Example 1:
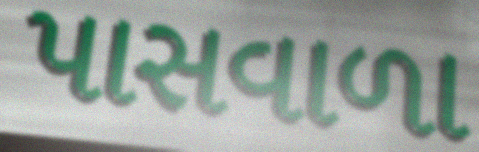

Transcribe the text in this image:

પાસવાળા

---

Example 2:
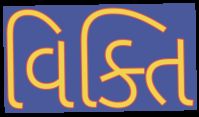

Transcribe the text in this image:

વિક્તિ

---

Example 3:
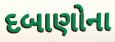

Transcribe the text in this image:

દબાણોના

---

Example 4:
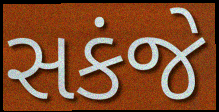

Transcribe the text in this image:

સકંજે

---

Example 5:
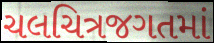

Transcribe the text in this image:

ચલચિત્રજગતમાં